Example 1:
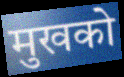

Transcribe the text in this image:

मुखको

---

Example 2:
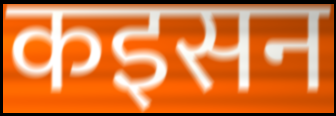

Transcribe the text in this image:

कइसन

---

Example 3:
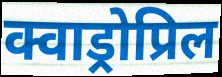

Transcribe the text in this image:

क्वाड्रोप्रिल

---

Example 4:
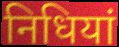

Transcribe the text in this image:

निधियां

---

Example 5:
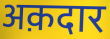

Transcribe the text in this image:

अक़दार